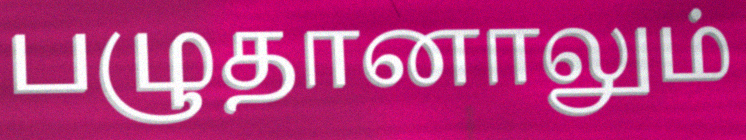
பழுதானாலும்